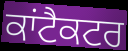
ਕਾਂਟੈਕਟਰ